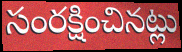
సంరక్షించినట్లు